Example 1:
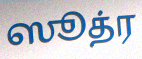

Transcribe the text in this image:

ஸூத்ர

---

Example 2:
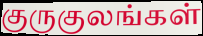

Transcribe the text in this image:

குருகுலங்கள்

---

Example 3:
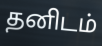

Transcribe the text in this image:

தனிடம்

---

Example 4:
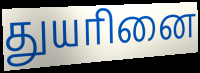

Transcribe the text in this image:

துயரினை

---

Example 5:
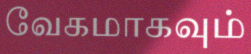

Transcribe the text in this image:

வேகமாகவும்